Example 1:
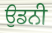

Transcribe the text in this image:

ਉਡਨੀ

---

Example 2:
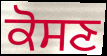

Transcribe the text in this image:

ਕੋਸਣ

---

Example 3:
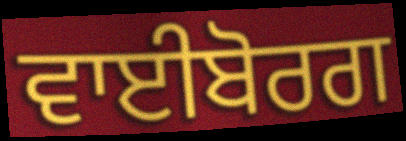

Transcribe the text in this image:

ਵਾਈਬੋਰਗ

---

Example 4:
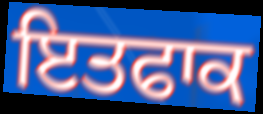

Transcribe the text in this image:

ਇਤਫਾਕ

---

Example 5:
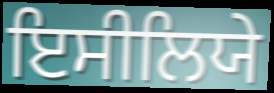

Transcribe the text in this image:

ਇਸੀਲਿਯੇ